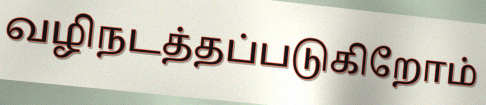
வழிநடத்தப்படுகிறோம்